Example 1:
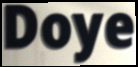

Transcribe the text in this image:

Doye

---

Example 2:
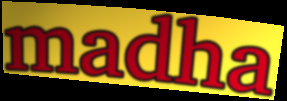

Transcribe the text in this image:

madha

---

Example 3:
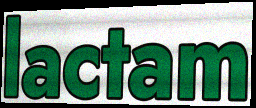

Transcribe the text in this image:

lactam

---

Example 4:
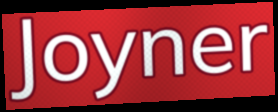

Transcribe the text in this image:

Joyner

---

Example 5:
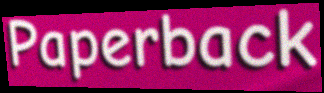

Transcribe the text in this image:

Paperback